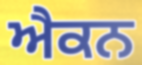
ਐਕਨ